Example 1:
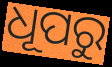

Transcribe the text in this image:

ଧୂପରୁ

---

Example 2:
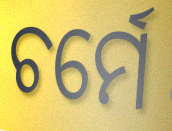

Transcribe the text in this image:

ଚର୍ମେ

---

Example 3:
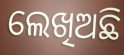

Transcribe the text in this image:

ଲେଖିଅଛି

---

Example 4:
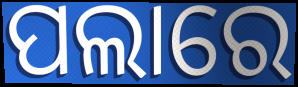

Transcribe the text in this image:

ପଲାରେ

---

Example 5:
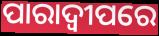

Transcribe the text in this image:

ପାରାଦ୍ୱୀପରେ